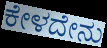
ಕೇಳದೇನು